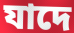
যাদে